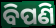
ବିପଣି